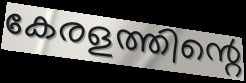
കേരളത്തിന്റെ